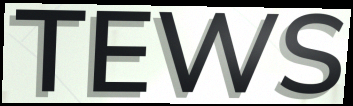
TEWS